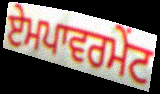
ਏਮਪਾਵਰਮੇਂਟ